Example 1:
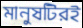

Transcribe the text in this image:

মানুষটিরই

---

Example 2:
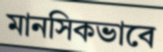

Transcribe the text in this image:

মানসিকভাবে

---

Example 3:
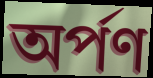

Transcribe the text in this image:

অর্পণ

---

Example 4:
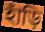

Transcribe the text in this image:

হাঁড়ি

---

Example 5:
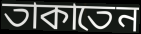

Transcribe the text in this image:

তাকাতেন